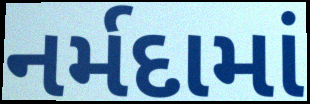
નર્મદામાં